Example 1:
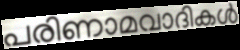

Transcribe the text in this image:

പരിണാമവാദികൾ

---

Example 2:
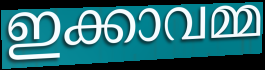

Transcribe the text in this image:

ഇക്കാവമ്മ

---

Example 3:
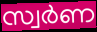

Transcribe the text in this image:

സ്വർണ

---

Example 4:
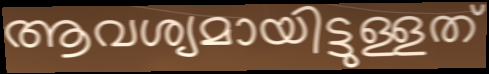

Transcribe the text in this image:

ആവശ്യമായിട്ടുള്ളത്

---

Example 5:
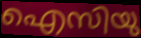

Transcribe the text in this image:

ഐസിയു